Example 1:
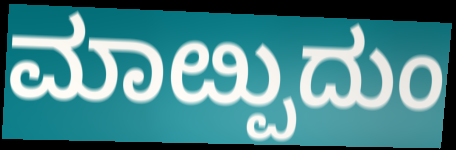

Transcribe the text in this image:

ಮಾೞ್ಪುದುಂ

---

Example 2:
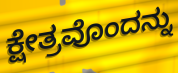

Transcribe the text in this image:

ಕ್ಷೇತ್ರವೊಂದನ್ನು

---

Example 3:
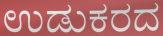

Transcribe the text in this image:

ಉಡುಕರದ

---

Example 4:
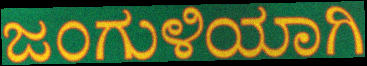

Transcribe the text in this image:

ಜಂಗುಳಿಯಾಗಿ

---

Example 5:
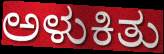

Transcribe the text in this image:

ಅಳುಕಿತು